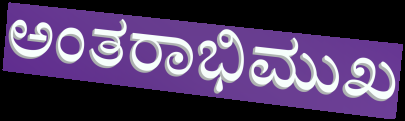
ಅಂತರಾಭಿಮುಖ